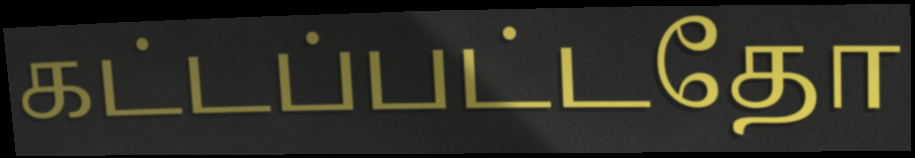
கட்டப்பட்டதோ